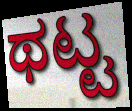
ಥಟ್ಟ